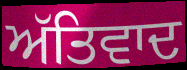
ਅੱਤਿਵਾਦ